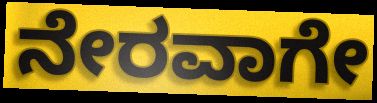
ನೇರವಾಗೇ